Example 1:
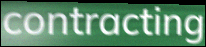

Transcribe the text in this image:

contracting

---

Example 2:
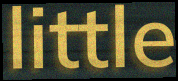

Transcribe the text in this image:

little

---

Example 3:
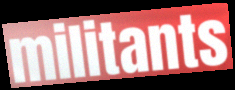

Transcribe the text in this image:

militants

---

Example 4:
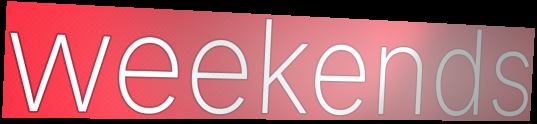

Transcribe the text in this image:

weekends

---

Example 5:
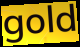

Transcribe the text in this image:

gold